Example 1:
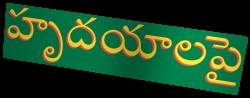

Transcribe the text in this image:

హృదయాలపై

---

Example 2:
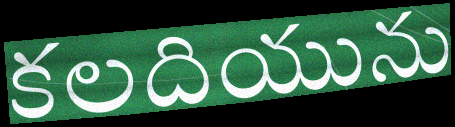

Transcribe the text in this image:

కలదియును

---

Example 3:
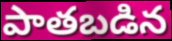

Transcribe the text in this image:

పాతబడిన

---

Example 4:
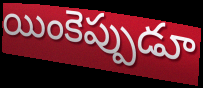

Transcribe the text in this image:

యింకెప్పుడూ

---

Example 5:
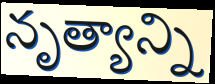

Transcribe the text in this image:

నృత్యాన్ని